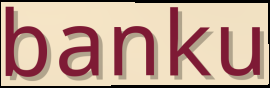
banku